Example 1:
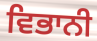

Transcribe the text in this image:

ਵਿਭਾਨੀ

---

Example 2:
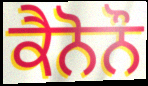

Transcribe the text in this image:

ਕੈਨੋਨੌ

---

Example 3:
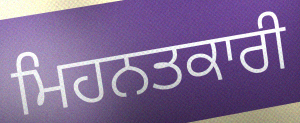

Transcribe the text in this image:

ਮਿਹਨਤਕਾਰੀ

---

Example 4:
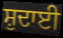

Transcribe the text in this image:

ਸ਼ੁਦਾਈ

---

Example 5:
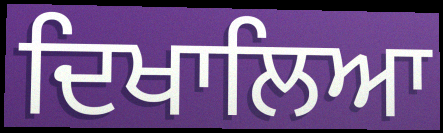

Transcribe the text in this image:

ਦਿਖਾਲਿਆ